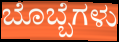
ಬೊಬ್ಬೆಗಳು